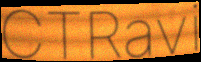
CTRavi